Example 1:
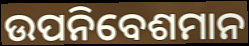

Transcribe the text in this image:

ଉପନିବେଶମାନ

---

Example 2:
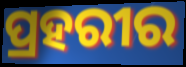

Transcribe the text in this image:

ପ୍ରହରୀର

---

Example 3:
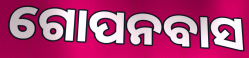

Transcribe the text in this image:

ଗୋପନବାସ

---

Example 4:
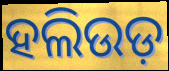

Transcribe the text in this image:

ହଲିଉଡ଼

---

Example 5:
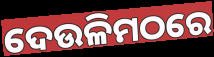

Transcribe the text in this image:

ଦେଉଳିମଠରେ